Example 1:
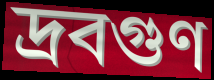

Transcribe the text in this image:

দ্রবগুণ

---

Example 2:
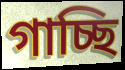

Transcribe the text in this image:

গাচ্ছি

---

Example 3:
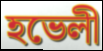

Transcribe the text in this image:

হভেলী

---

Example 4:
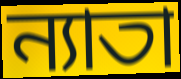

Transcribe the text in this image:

ন্যাতা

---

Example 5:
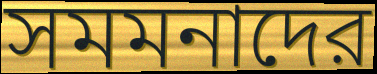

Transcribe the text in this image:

সমমনাদের